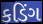
કડિંગ